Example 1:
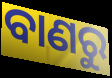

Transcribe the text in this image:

ବାଣରୁ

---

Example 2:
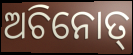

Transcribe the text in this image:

ଅଚିନୋତ୍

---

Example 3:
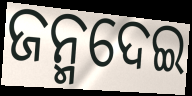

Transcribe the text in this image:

ଜନ୍ମଦେଇ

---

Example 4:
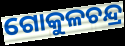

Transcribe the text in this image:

ଗୋକୁଳଚନ୍ଦ୍ର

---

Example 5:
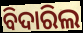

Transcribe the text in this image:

ବିଦାରିଲ